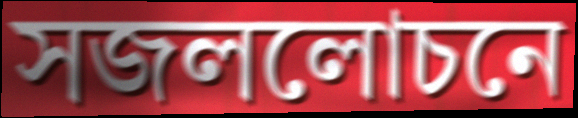
সজললোচনে